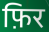
फ़िर